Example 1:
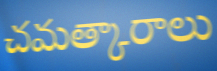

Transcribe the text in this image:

చమత్కారాలు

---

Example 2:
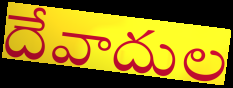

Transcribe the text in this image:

దేవాదుల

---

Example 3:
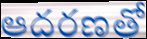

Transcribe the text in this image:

ఆదరణతో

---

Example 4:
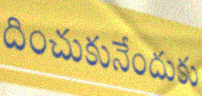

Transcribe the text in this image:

దించుకునేందుకు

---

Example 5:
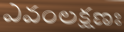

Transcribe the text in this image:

ఎవంలక్షణః